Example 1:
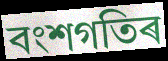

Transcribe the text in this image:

বংশগতিৰ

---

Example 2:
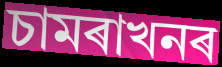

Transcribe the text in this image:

চামৰাখনৰ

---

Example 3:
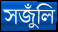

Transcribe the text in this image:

সজুঁলি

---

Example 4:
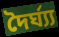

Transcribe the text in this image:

দৈৰ্ঘ্য্য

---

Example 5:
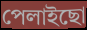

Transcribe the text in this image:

পেলাইছো